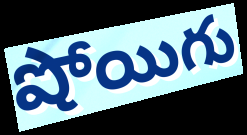
షోయిగు